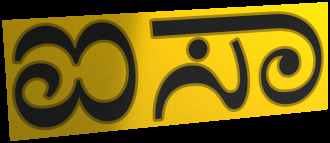
ಐಸಾ